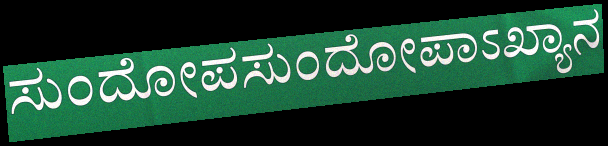
ಸುಂದೋಪಸುಂದೋಪಾಽಖ್ಯಾನ